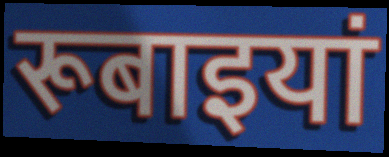
रूबाइयां